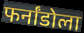
फर्नांडोला